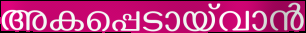
അകപ്പെടായ്‌വാൻ